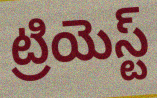
ట్రియెస్ట్